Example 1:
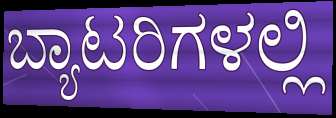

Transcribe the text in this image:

ಬ್ಯಾಟರಿಗಳಲ್ಲಿ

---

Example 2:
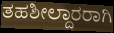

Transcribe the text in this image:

ತಹಶೀಲ್ದಾರರಾಗಿ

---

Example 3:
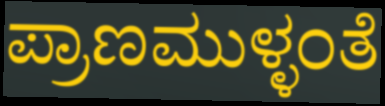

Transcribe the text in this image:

ಪ್ರಾಣಮುಳ್ಳಂತೆ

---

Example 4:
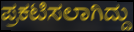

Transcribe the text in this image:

ಪ್ರಕಟಿಸಲಾಗಿದ್ದು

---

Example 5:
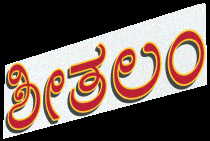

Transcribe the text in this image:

ಶೀತಲಂ